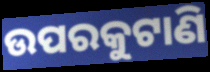
ଉପରକୁଟାଣି